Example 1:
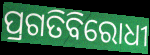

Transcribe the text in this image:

ପ୍ରଗତିବିରୋଧୀ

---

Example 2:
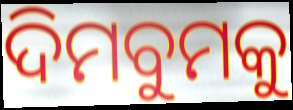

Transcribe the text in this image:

ଦିମବୁମକୁ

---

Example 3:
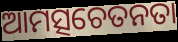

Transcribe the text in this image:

ଆମତ୍ସଚେତନତା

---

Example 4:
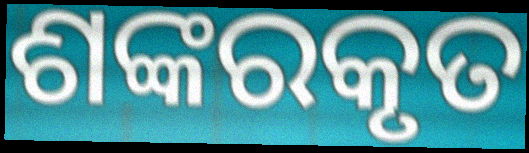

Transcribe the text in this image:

ଶଙ୍କରକୃତ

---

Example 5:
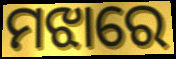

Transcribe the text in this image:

ମଝାରେ